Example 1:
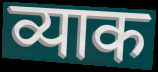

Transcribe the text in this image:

व्याक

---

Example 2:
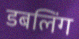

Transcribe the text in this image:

डबलिंग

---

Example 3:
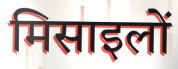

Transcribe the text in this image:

मिसाइलों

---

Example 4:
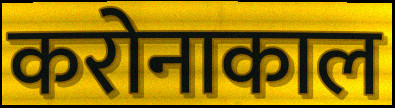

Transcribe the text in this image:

करोनाकाल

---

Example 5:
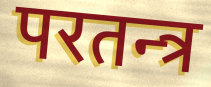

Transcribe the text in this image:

परतन्त्र